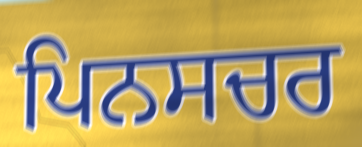
ਪਿਨਸਚਰ